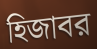
হিজাবর